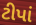
ટીપાં